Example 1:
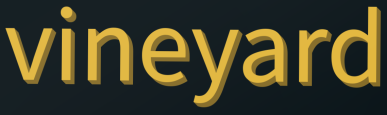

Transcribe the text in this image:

vineyard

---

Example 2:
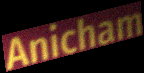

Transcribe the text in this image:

Anicham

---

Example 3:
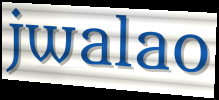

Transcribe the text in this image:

jwalao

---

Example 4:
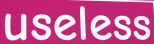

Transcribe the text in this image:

useless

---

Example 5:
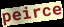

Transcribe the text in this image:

peirce